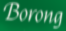
Borong